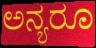
ಅನ್ಯರೂ